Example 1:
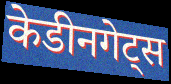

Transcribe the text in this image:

केडीनगेट्स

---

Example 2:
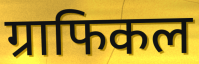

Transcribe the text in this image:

ग्राफिकल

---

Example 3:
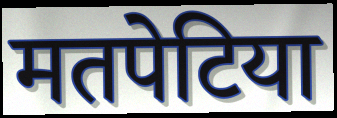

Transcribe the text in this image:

मतपेटिया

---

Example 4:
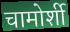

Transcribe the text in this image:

चामोर्शी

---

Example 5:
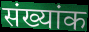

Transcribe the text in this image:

संख्यांक